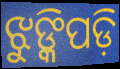
ଝୁଙ୍କିପଡ଼ି